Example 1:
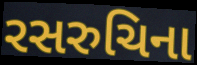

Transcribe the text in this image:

રસરુચિના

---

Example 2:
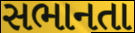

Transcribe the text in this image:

સભાનતા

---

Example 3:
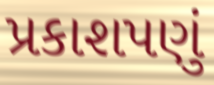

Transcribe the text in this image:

પ્રકાશપણું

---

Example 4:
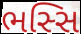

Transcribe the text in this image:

ભસ્સિ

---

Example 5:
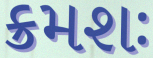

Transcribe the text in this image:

ક્રમશઃ